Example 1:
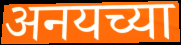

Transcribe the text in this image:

अनयच्या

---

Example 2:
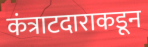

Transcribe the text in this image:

कंत्राटदाराकडून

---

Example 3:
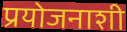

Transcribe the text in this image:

प्रयोजनाशी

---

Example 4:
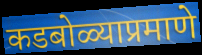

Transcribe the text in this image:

कडबोळ्याप्रमाणे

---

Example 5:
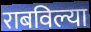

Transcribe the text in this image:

राबविल्या